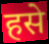
हसे